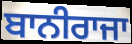
ਬਾਨੀਰਾਜਾ